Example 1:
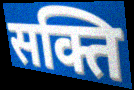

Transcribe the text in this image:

सक्ति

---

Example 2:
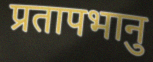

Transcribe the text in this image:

प्रतापभानु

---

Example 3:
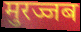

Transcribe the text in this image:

मुरज्जब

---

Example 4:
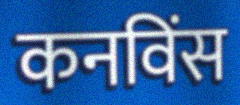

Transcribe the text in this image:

कनविंस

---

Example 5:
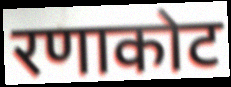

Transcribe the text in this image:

रणाकोट